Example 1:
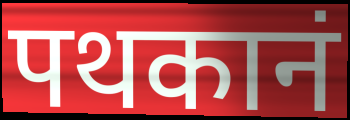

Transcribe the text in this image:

पथकानं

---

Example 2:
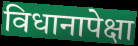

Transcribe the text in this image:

विधानापेक्षा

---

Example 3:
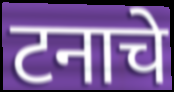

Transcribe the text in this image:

टनाचे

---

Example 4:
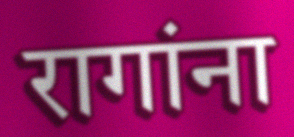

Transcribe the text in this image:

रागांना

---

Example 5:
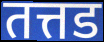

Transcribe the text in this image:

तत्तड